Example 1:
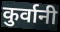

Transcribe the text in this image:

कुर्वानी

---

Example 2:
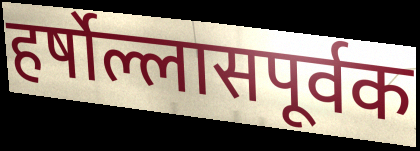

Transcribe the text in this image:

हर्षोल्लासपूर्वक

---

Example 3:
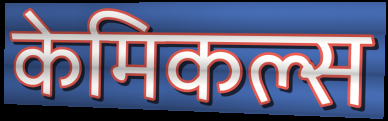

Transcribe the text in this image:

केमिकल्स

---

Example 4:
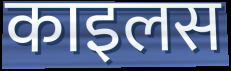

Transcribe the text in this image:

काइलस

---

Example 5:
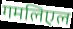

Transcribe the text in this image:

गमलिएल